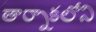
తార్నాకలోని